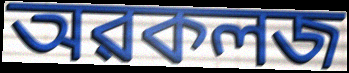
অৱকলজ